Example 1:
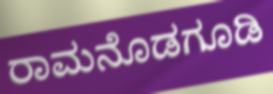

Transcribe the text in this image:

ರಾಮನೊಡಗೂಡಿ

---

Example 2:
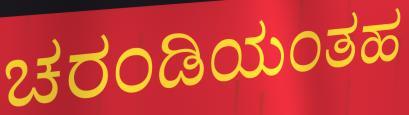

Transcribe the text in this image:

ಚರಂಡಿಯಂತಹ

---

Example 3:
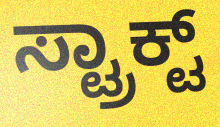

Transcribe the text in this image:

ಸ್ಟ್ರಾಕ್ಟ್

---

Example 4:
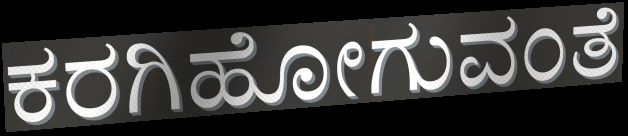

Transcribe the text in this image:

ಕರಗಿಹೋಗುವಂತೆ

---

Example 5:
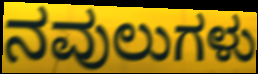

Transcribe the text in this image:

ನವುಲುಗಳು